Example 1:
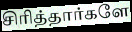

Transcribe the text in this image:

சிரித்தார்களே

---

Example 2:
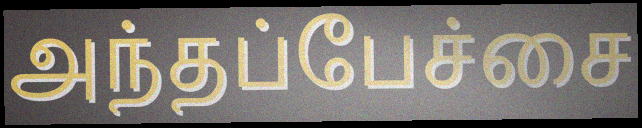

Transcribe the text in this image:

அந்தப்பேச்சை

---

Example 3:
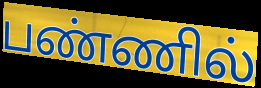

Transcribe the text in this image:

பண்ணில்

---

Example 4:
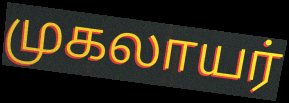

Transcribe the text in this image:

முகலாயர்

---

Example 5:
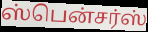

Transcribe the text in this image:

ஸ்பென்சர்ஸ்